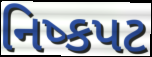
નિષ્કપટ